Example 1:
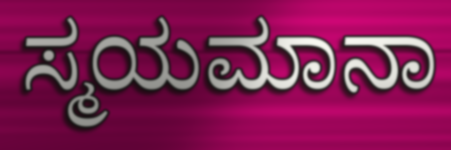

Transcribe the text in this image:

ಸ್ಮಯಮಾನಾ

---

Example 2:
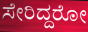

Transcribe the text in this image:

ಸೇರಿದ್ದರೋ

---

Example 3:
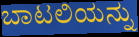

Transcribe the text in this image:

ಬಾಟಲಿಯನ್ನು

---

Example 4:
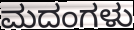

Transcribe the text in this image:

ಮದಂಗಳು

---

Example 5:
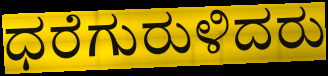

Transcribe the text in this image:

ಧರೆಗುರುಳಿದರು